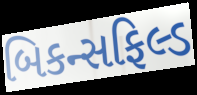
બિકન્સફિલ્ડ